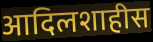
आदिलशाहीस